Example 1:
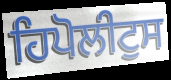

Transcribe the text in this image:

ਹਿਪੋਲੀਟੁਸ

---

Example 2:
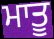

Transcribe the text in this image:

ਮਾਤੂ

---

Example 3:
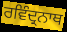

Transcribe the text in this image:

ਰਵਿੰਦ੍ਰਨਾਥ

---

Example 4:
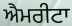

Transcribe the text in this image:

ਐਮਰੀਟਾ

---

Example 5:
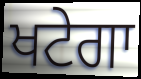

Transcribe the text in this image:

ਖਟੇਗਾ